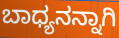
ಬಾಧ್ಯನನ್ನಾಗಿ